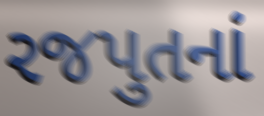
રજપુતનાં